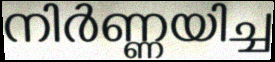
നിർണ്ണയിച്ച